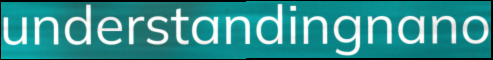
understandingnano